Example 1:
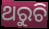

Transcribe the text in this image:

ଥରୁଚି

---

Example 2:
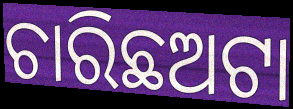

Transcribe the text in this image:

ଚାରିଛଅଟା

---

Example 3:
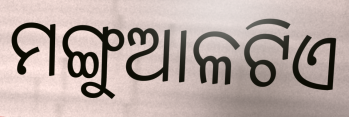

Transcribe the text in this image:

ମଙ୍ଗୁଆଳଟିଏ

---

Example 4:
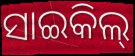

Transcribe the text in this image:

ସାଇକିଲ୍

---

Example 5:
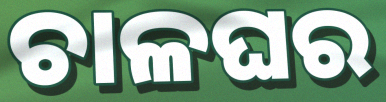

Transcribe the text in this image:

ଚାଳଘର